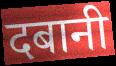
दबानी